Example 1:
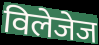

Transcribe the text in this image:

विलेजेज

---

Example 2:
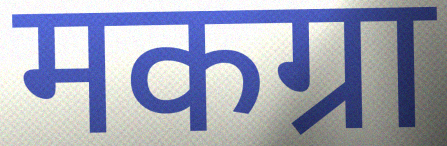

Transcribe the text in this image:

मकग्रा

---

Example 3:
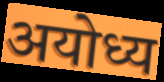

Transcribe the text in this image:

अयोध्य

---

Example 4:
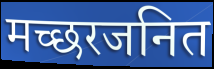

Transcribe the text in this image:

मच्छरजनित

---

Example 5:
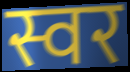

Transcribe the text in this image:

स्‍वर